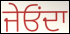
ਜੇਓੰਦਾ